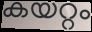
കയറ്റം